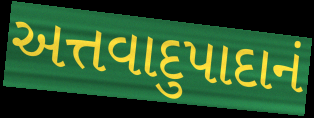
અત્તવાદુપાદાનં